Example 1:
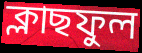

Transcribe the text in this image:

ক্লাছফুল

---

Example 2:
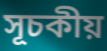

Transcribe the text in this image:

সূচকীয়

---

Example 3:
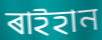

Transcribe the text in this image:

ৰাইহান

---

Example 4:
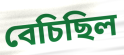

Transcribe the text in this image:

বেচিছিল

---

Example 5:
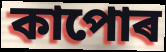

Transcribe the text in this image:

কাপোৰ